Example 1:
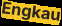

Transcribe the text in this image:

Engkau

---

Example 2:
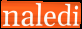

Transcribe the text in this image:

naledi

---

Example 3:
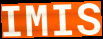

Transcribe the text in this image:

IMIS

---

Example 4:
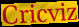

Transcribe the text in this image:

Cricviz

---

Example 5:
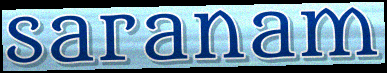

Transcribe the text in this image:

saranam